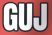
GUJ